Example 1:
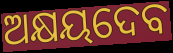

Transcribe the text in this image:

ଅକ୍ଷୟଦେବ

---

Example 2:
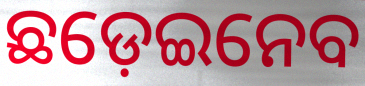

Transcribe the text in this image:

ଛଡ଼େଇନେବ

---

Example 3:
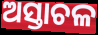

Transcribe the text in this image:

ଅସ୍ତାଚଳ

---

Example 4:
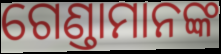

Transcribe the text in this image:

ଗେଣ୍ଡାମାନଙ୍କ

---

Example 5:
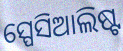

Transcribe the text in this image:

ସ୍ପେସିଆଲିଷ୍ଟ